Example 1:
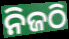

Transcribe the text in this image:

ନିଜଠି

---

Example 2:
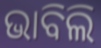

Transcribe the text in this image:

ଭାବିଲି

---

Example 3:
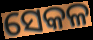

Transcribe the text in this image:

ସେକଳ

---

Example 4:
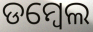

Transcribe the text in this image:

ଡମ୍ୱେଲ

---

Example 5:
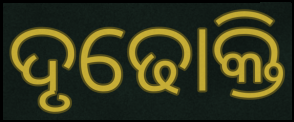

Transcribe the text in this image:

ଦୃଢୋକ୍ତି